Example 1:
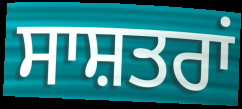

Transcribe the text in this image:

ਸਾਸ਼ਤਰਾਂ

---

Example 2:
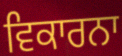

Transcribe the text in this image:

ਵਿਕਾਰਨਾ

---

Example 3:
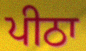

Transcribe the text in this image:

ਪੀਠਾ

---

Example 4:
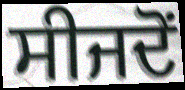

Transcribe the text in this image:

ਸੀਜਦੋਂ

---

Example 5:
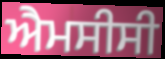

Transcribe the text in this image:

ਐਮਸੀਸੀ